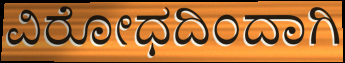
ವಿರೋಧದಿಂದಾಗಿ